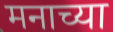
मनाच्या